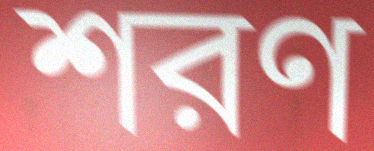
শরণ